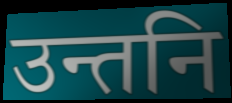
उन्तनि